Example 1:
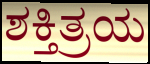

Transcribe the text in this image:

ಶಕ್ತಿತ್ರಯ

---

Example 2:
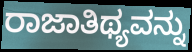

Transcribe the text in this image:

ರಾಜಾತಿಥ್ಯವನ್ನು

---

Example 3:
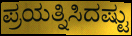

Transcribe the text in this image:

ಪ್ರಯತ್ನಿಸಿದಷ್ಟು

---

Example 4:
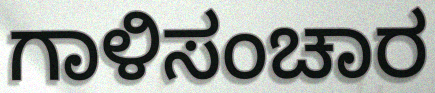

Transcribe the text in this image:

ಗಾಳಿಸಂಚಾರ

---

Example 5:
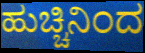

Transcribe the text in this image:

ಹುಚ್ಚಿನಿಂದ